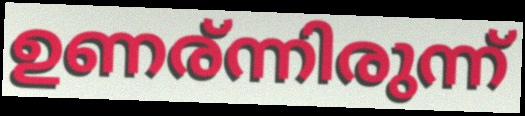
ഉണര്ന്നിരുന്ന്